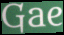
Gae